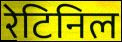
रेटिनिल